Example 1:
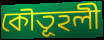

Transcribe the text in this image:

কৌতূহলী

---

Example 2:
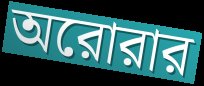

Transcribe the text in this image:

অরোরার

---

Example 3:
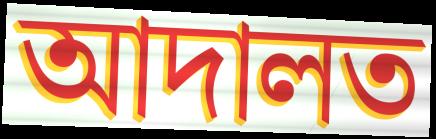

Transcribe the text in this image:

আদালত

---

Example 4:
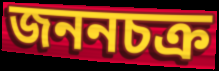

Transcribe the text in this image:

জননচক্র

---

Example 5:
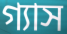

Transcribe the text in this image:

গ্যাস